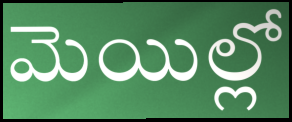
మెయిల్లో